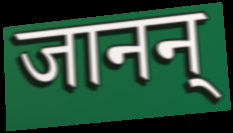
जानन्